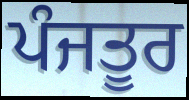
ਪੰਜਤੂਰ